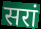
सरां